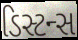
ડિસ્ટન્સ